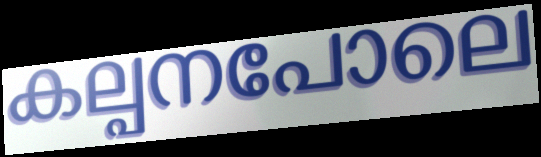
കല്പനപോലെ